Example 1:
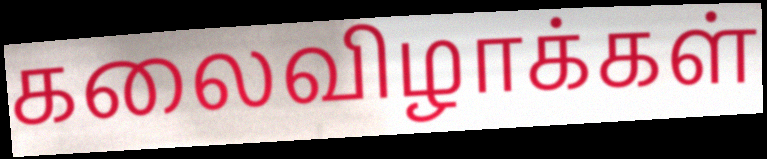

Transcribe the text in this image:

கலைவிழாக்கள்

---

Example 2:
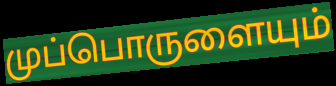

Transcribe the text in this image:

முப்பொருளையும்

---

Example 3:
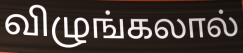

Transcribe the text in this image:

விழுங்கலால்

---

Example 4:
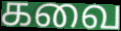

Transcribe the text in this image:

கவை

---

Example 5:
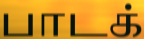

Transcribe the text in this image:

பாடக்